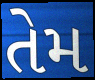
તેમ